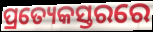
ପ୍ରତ୍ୟେକସ୍ତରରେ